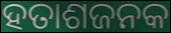
ହତାଶଜନକ